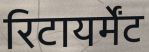
रिटायर्मेंट